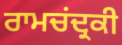
ਰਾਮਚਂਦ੍ਰਕੀ